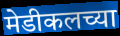
मेडीकलच्या